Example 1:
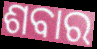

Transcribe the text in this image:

ଶବାର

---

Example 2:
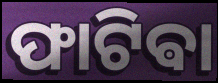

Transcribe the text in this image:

ଫାଟିଵା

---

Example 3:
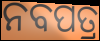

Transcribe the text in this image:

ନବପତ୍ର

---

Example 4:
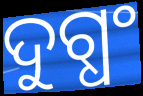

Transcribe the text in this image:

ଦୁଗ୍ଧଂ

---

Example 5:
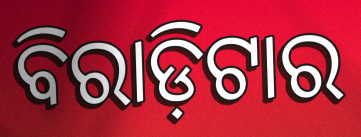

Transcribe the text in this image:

ବିରାଡ଼ିଟାର